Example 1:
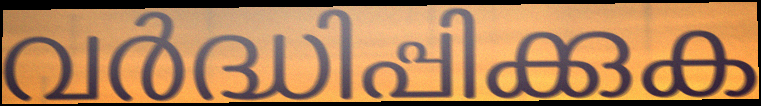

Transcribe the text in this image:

വർദ്ധിപ്പിക്കുക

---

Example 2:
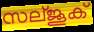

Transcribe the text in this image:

സല്ജൂക്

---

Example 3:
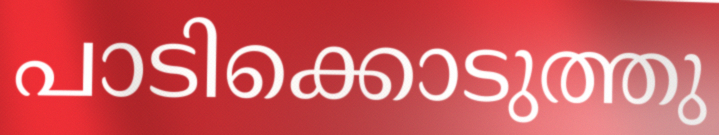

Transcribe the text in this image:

പാടിക്കൊടുത്തു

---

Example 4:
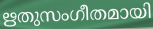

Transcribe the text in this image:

ഋതുസംഗീതമായി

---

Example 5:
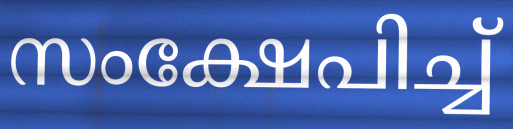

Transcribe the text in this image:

സംക്ഷേപിച്ച്